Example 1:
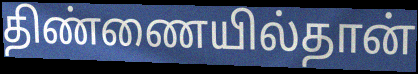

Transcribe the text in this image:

திண்ணையில்தான்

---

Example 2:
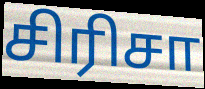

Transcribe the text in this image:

சிரிசா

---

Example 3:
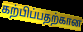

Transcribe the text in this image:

கற்பிப்பதற்கான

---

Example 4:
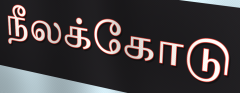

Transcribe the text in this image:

நீலக்கோடு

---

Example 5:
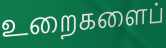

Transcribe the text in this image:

உறைகளைப்